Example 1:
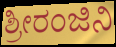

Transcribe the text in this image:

ಶ್ರೀರಂಜಿನಿ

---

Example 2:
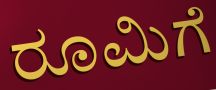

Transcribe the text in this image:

ರೂಮಿಗೆ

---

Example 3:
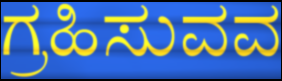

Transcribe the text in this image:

ಗ್ರಹಿಸುವವ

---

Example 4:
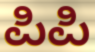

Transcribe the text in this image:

ಪಿಪಿ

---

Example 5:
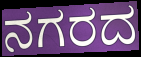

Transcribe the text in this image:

ನಗರದ